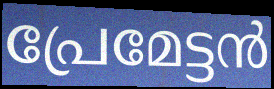
പ്രേമേട്ടൻ